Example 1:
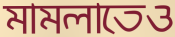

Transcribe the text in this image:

মামলাতেও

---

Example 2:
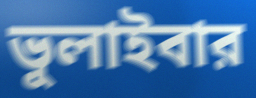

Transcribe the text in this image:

ভুলাইবার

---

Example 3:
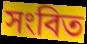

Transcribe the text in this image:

সংবিত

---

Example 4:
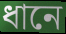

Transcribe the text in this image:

ধানে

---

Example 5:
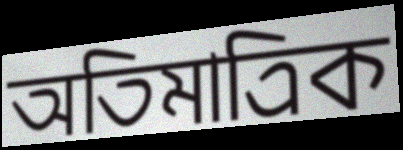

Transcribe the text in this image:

অতিমাত্রিক